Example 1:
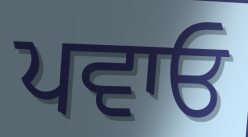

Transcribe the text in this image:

ਪਵਾਓ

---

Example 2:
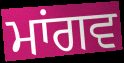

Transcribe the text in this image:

ਮਾਂਗਵ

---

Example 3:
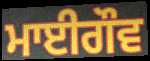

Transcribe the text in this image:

ਮਾਈਗੌਵ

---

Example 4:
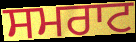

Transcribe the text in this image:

ਸਮਰਾਟ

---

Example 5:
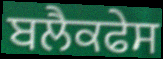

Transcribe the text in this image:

ਬਲੈਕਫੇਸ